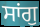
ਸਾਂਗੁ